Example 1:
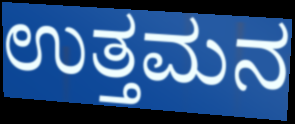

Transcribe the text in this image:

ಉತ್ತಮನ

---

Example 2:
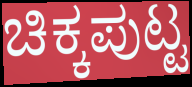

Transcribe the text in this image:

ಚಿಕ್ಕಪುಟ್ಟ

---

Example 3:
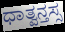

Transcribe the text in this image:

ಧಾತ್ವನ್ತಸ್ಸ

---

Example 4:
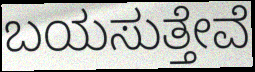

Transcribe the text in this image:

ಬಯಸುತ್ತೇವೆ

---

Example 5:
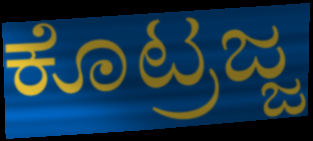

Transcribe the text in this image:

ಕೊಟ್ರಜ್ಜ